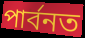
পাৰ্বনত